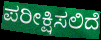
ಪರೀಕ್ಷಿಸಲಿದೆ